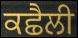
ਕਛੈਲੀ